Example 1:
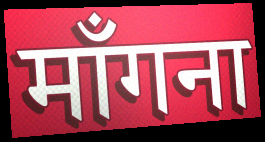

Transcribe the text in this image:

माँगना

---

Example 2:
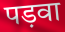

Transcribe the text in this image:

पड़वा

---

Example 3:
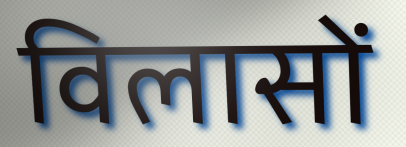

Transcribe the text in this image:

विलासों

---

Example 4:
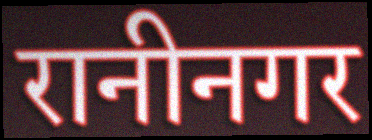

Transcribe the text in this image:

रानीनगर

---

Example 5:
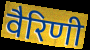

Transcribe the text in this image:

वैरिणी